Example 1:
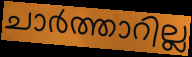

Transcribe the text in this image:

ചാർത്താറില്ല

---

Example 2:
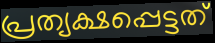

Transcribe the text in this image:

പ്രത്യക്ഷപ്പെട്ടത്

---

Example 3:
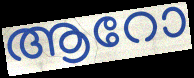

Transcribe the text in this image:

ആറോ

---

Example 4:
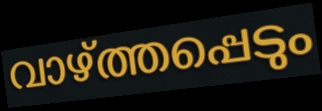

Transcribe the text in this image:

വാഴ്ത്തപ്പെടും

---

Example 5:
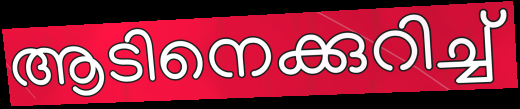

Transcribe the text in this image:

ആടിനെക്കുറിച്ച്